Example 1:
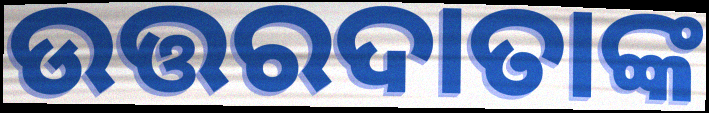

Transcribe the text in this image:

ଉତ୍ତରଦାତାଙ୍କ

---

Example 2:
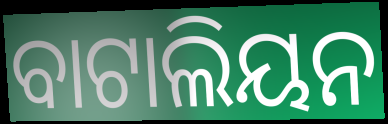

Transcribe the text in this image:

ବାଟାଲିୟନ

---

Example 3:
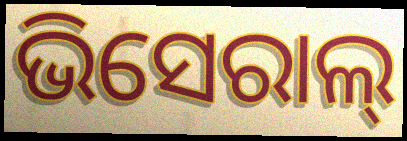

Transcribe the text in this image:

ଭିସେରାଲ୍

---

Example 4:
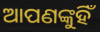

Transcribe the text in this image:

ଆପଣଙ୍କୁହିଁ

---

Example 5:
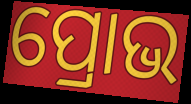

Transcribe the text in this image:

ପ୍ରୋଭ